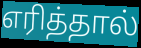
எரித்தால்